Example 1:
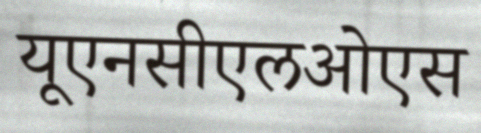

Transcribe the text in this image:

यूएनसीएलओएस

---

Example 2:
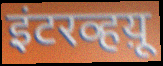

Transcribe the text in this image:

इंटरव्हय़ू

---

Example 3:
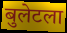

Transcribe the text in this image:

बुलेटला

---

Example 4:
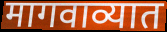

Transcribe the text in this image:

मागवाव्यात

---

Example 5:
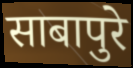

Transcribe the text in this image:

साबापुरे